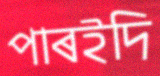
পাৰইদি